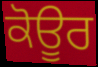
ਕੋਊਰ